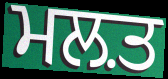
ਮਲ਼ਤ